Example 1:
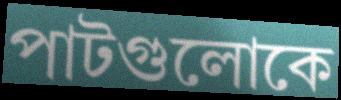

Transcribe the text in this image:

পাটগুলোকে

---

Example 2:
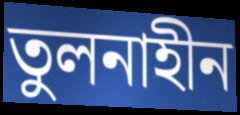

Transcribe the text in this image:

তুলনাহীন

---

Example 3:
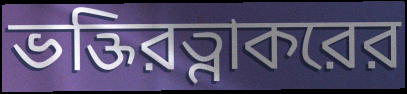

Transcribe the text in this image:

ভক্তিরত্নাকরের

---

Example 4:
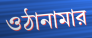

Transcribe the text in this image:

ওঠানামার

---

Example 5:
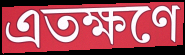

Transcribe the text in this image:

এতক্ষণে